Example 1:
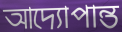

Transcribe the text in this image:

আদ্যোপান্ত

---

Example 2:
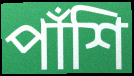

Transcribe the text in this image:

পাঁশি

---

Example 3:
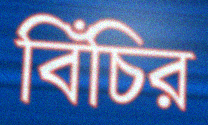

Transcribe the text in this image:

বিঁচির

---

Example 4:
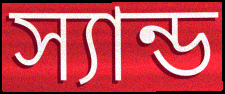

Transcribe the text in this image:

স্যান্ড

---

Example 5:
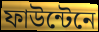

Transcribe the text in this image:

ফাউন্টেনে